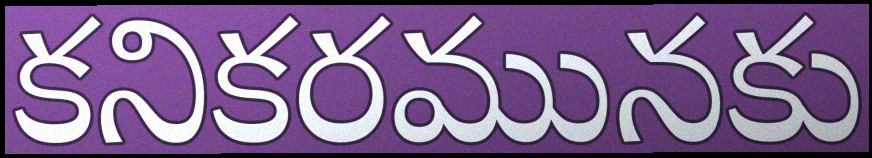
కనికరమునకు